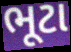
ભૂટા